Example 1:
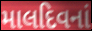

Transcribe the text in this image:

માલદિવનાં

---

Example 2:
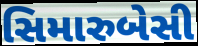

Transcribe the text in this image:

સિમારુબેસી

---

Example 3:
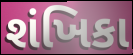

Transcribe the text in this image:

શંખિકા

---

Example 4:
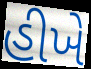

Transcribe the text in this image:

હીખે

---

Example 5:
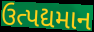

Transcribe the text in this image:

ઉત્પદ્યમાન